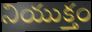
నియుక్తం